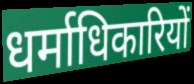
धर्माधिकारियों